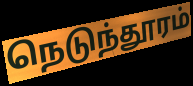
நெடுந்தூரம்